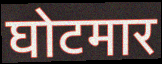
घोटमार